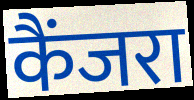
कैंजरा